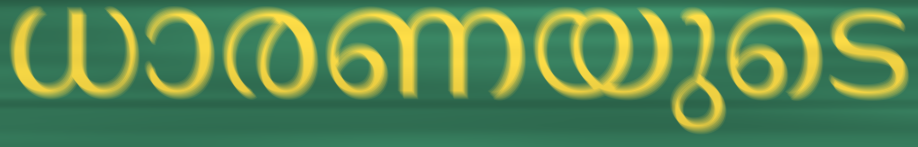
ധാരണയുടെ